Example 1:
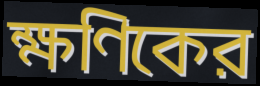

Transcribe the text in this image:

ক্ষণিকের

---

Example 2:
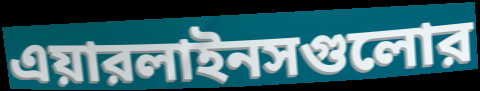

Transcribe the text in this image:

এয়ারলাইনসগুলোর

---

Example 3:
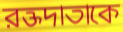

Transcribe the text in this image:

রক্তদাতাকে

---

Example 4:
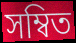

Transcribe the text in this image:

সম্বিত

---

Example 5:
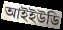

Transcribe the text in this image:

আইইউডি